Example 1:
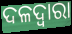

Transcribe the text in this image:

ଦଳଦ୍ୱାରା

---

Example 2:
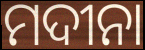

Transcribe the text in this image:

ମଦୀନା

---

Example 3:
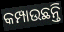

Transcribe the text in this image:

କମ୍ପାଉଛନ୍ତି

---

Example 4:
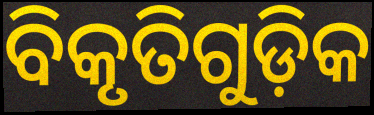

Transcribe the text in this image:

ବିକୃତିଗୁଡ଼ିକ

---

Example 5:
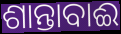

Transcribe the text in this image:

ଶାନ୍ତାବାଈ